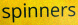
spinners